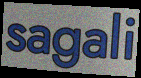
sagali